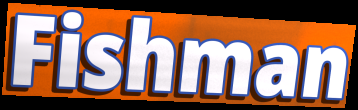
Fishman